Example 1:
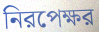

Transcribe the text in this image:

নিরপেক্ষর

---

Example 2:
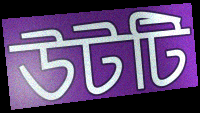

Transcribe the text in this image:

উটটি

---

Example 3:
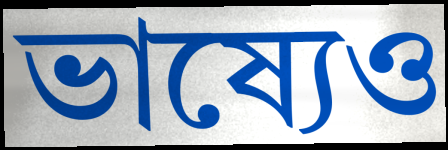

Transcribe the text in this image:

ভাষ্যেও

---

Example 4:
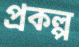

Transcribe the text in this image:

প্রকল্প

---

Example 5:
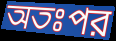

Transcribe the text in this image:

অতঃপর